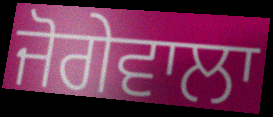
ਜੋਗੇਵਾਲਾ